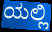
ಯಲ್ಲಿ